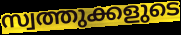
സ്വത്തുക്കളുടെ